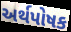
અર્થપોષક